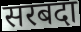
सरबदा